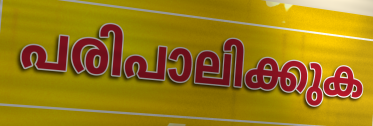
പരിപാലിക്കുക